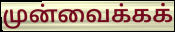
முன்வைக்கக்